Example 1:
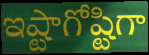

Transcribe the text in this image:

ఇష్టాగోష్టిగా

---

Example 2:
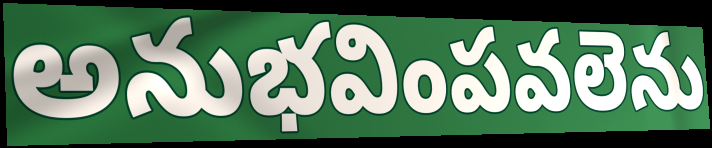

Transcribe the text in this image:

అనుభవింపవలెను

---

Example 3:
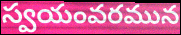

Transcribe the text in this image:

స్వయంవరమున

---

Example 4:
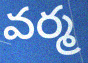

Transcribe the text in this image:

వర్మ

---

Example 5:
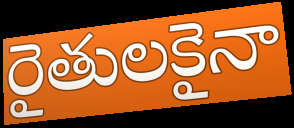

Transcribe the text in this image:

రైతులకైనా